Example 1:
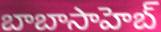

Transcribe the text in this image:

బాబాసాహెబ్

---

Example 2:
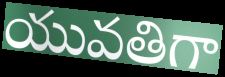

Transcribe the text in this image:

యువతిగా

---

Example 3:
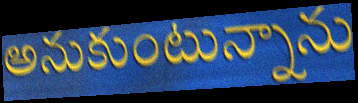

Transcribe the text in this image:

అనుకుంటున్నాను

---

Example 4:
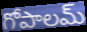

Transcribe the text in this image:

గోపాలమ్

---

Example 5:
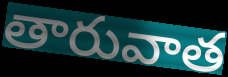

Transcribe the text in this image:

తారువాత